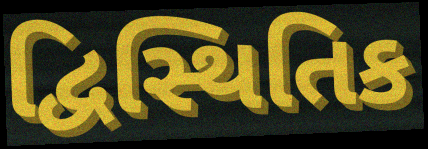
દ્વિસ્થિતિક